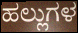
ಹಲ್ಲುಗಳ